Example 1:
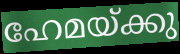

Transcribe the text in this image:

ഹേമയ്ക്കു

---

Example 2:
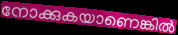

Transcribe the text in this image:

നോക്കുകയാണെങ്കിൽ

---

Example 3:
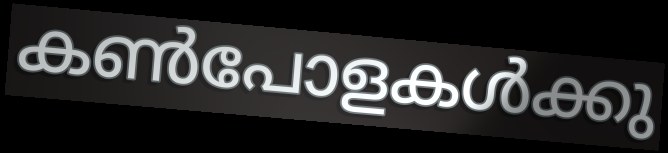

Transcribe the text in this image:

കൺപോളകൾക്കു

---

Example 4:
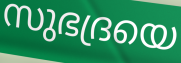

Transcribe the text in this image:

സുഭദ്രയെ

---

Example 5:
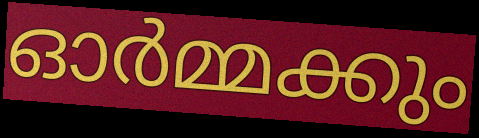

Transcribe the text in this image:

ഓർമ്മക്കും